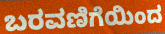
ಬರವಣಿಗೆಯಿಂದ